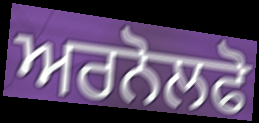
ਅਰਨੋਲਫੋ